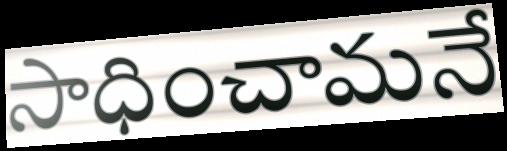
సాధించామనే